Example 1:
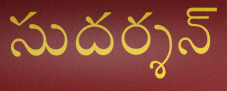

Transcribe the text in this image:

సుదర్శన్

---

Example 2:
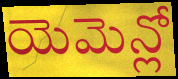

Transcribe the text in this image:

యెమెన్లో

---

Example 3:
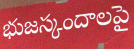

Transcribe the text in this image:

భుజస్కందాలపై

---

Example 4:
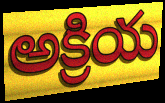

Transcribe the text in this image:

అక్రియ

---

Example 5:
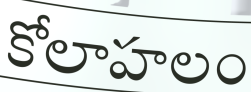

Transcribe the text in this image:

కోలాహలం